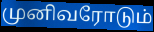
முனிவரோடும்